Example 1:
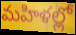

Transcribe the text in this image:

మహిళల్లో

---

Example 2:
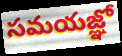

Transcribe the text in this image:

సమయజ్ఞో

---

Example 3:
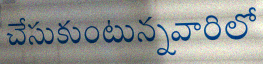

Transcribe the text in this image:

చేసుకుంటున్నవారిలో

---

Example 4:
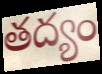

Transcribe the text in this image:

తద్యం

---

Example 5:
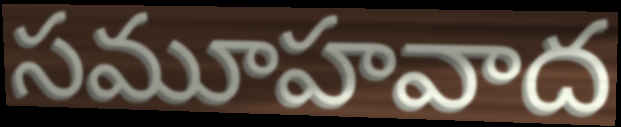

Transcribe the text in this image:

సమూహవాద